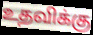
உதவிக்கு